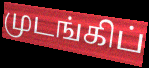
முடங்கிப்